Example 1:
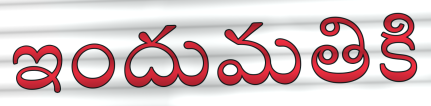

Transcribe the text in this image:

ఇందుమతికి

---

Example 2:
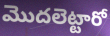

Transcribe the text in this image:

మొదలెట్టారో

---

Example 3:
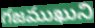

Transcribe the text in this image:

గజముఖుని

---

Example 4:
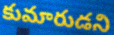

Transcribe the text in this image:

కుమారుడని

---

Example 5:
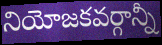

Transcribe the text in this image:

నియోజకవర్గాన్నీ